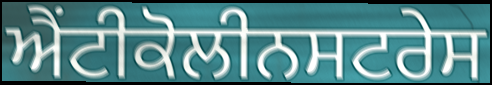
ਐਂਟੀਕੋਲੀਨਸਟਰੇਸ